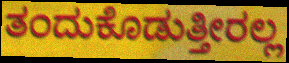
ತಂದುಕೊಡುತ್ತೀರಲ್ಲ